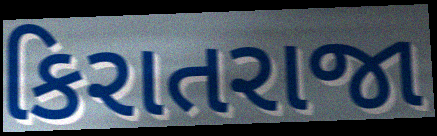
કિરાતરાજા